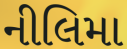
નીલિમા